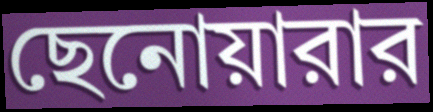
ছেনোয়ারার